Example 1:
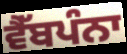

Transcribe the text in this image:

ਵੈੱਬਪੰਨਾ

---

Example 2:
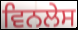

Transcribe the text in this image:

ਵਿਨਲੇਸ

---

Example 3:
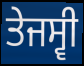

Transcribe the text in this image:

ਤੇਜਸ੍ਵੀ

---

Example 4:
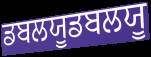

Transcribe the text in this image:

ਡਬਲਯੂਡਬਲਯੂ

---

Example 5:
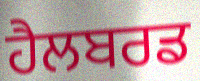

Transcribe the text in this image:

ਹੈਲਬਰਡ